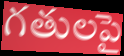
గతులపై